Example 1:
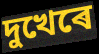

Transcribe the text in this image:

দুখেৰে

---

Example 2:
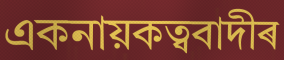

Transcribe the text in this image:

একনায়কত্ববাদীৰ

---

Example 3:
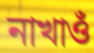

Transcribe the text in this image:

নাখাওঁ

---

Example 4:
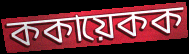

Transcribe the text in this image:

ককায়েকক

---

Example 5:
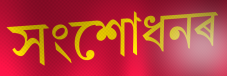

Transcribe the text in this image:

সংশোধনৰ